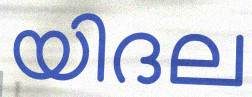
യിദല